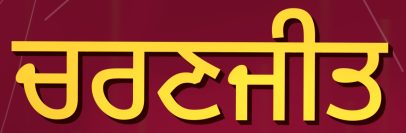
ਚਰਣਜੀਤ